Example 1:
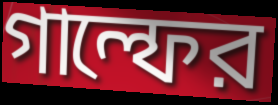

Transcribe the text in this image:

গাল্ফের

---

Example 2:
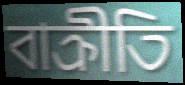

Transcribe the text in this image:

বাক্রীতি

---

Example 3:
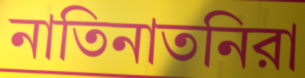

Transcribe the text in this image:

নাতিনাতনিরা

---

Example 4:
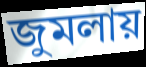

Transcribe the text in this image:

জুমলায়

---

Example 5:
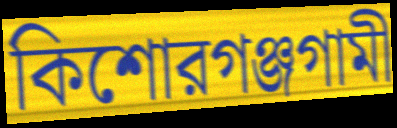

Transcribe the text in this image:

কিশোরগঞ্জগামী